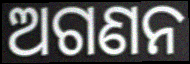
ଅଗଣନ